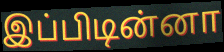
இப்பிடின்னா